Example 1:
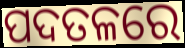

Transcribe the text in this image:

ପଦତଳରେ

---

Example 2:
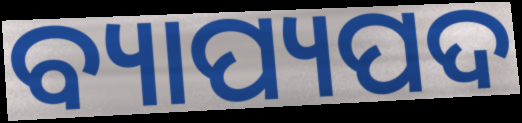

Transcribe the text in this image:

ବ୍ୟାପ୍ୟପଦ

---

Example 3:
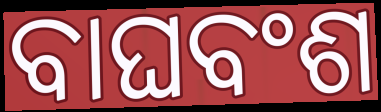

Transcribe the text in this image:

ବାଘବଂଶ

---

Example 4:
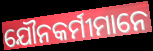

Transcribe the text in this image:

ଯୌନକର୍ମୀମାନେ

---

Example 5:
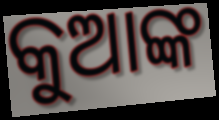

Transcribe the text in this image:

କୁଆଙ୍କ